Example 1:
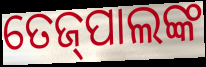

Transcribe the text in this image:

ତେଜ୍‌ପାଲଙ୍କ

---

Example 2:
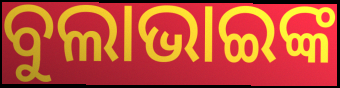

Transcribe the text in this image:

ବୁଲାଭାଇଙ୍କ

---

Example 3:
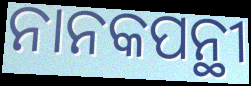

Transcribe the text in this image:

ନାନକପନ୍ଥୀ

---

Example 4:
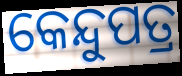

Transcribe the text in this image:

କେନ୍ଦୁପତ୍ର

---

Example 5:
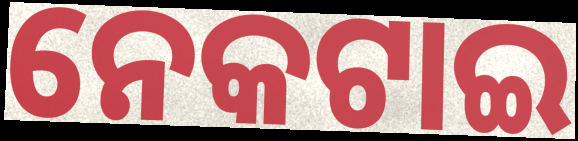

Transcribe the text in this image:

ନେକଟାଇ